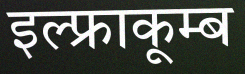
इल्फ्राकूम्ब